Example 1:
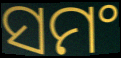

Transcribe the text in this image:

ସମଂ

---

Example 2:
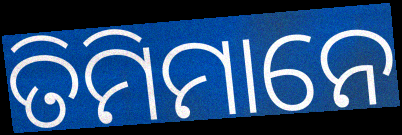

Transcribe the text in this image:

ତିମିମାନେ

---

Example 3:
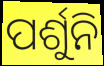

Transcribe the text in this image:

ପର୍ଶୁନି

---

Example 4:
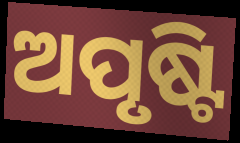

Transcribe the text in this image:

ଅପୃଷ୍ଟି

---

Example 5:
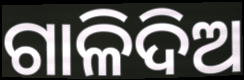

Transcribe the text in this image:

ଗାଳିଦିଅ